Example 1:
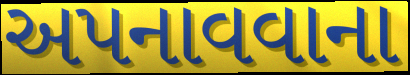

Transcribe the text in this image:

અપનાવવાના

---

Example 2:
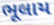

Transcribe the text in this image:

ભૂલાય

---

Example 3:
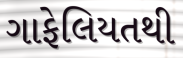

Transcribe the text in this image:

ગાફેલિયતથી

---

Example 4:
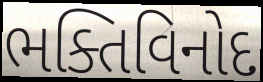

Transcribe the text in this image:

ભક્તિવિનોદ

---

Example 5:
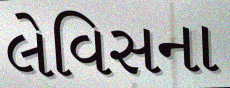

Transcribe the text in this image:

લેવિસના